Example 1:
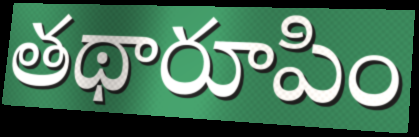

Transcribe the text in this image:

తథారూపిం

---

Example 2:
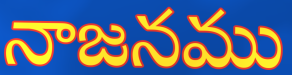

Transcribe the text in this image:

నాజనము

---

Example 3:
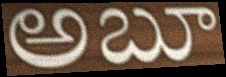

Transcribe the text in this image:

అబూ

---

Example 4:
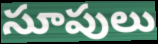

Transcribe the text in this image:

సూపులు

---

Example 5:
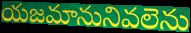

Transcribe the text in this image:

యజమానునివలెను